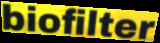
biofilter